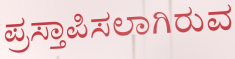
ಪ್ರಸ್ತಾಪಿಸಲಾಗಿರುವ